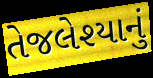
તેજલેશ્યાનું